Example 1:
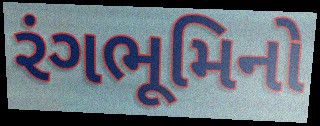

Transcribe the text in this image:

રંગભૂમિનો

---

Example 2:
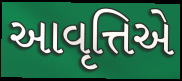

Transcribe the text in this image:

આવૃત્તિએ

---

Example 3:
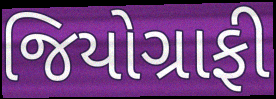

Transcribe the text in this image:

જિયોગ્રાફી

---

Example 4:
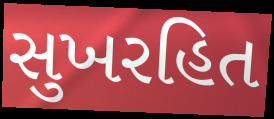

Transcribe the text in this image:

સુખરહિત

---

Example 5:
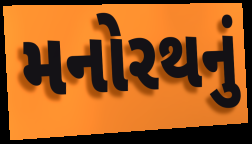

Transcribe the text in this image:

મનોરથનું